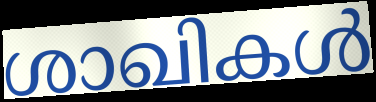
ശാഖികൾ